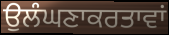
ਉਲੰਘਣਾਕਰਤਾਵਾਂ